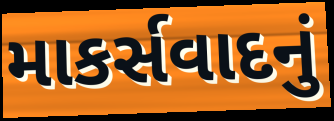
માકર્સવાદનું